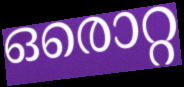
ഒരൊറ്റ